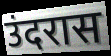
उंदरास